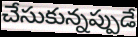
చేసుకున్నప్పుడే